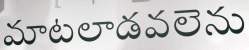
మాటలాడవలెను